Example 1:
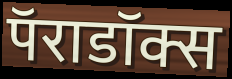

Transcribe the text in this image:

पॅराडॉक्स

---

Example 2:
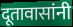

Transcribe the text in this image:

दूतावासांनी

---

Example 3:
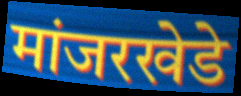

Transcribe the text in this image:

मांजरखेडे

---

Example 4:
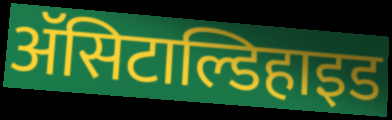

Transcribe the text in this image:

ॲसिटाल्डिहाइड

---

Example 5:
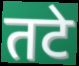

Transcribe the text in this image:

तटे